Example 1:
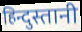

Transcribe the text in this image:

हिन्दुस्तानी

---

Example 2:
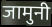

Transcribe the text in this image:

जामुनी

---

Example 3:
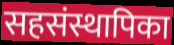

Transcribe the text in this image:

सहसंस्थापिका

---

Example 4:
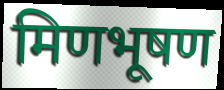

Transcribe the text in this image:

मिणभूषण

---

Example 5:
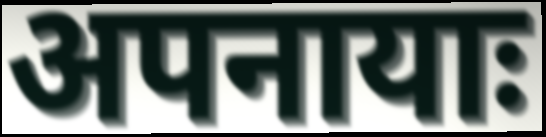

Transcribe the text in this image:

अपनायाः